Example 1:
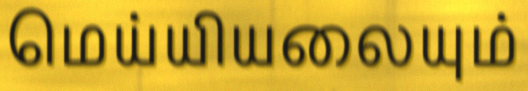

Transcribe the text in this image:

மெய்யியலையும்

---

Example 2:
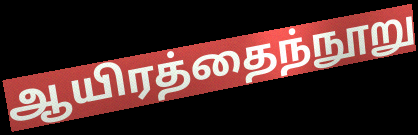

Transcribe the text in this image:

ஆயிரத்தைந்நூறு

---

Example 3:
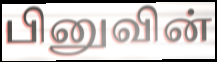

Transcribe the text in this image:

பினுவின்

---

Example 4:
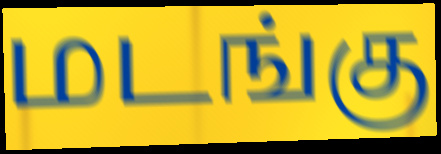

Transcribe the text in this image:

மடங்கு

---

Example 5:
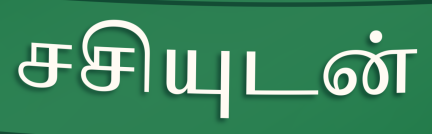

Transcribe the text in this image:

சசியுடன்